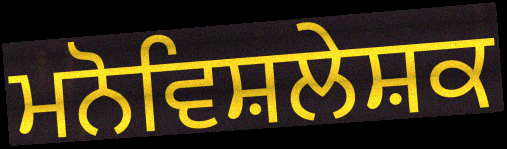
ਮਨੋਵਿਸ਼ਲੇਸ਼ਕ